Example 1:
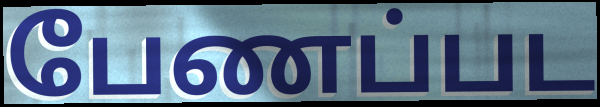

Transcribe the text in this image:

பேணப்பட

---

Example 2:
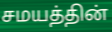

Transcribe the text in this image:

சமயத்தின்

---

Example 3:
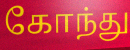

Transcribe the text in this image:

கோந்து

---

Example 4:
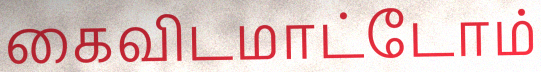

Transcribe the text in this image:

கைவிடமாட்டோம்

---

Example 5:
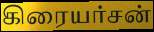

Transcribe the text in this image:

கிரையர்சன்